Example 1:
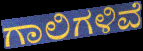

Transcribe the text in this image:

ಗಾಲಿಗಳಿವೆ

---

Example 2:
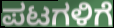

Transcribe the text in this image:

ಪಟಗಳಿಗೆ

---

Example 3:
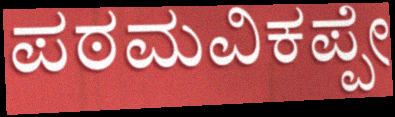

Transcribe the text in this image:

ಪಠಮವಿಕಪ್ಪೇ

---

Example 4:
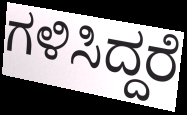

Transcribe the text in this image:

ಗಳಿಸಿದ್ದರೆ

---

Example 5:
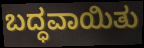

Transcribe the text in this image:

ಬದ್ಧವಾಯಿತು